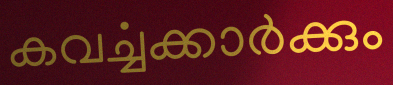
കവൎച്ചക്കാർക്കും